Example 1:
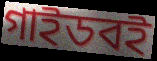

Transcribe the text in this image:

গাইডবই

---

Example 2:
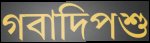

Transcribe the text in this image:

গবাদিপশু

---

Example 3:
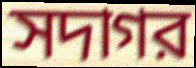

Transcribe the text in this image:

সদাগর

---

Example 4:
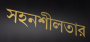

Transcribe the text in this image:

সহনশীলতার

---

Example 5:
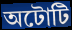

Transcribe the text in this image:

অটোটি